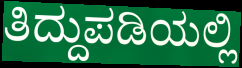
ತಿದ್ದುಪಡಿಯಲ್ಲಿ